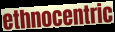
ethnocentric